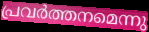
പ്രവർത്തനമെന്നു